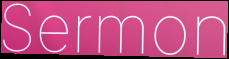
Sermon